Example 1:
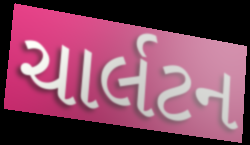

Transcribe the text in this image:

ચાર્લટન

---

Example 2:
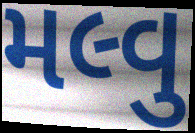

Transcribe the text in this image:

મલ્વુ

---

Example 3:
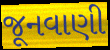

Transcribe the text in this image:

જૂનવાણી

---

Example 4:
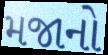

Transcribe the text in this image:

મજાનો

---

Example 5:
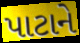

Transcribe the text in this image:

પાટાને